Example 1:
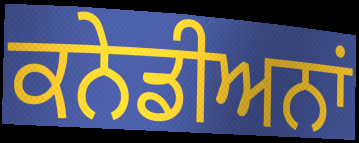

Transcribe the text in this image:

ਕਨੇਡੀਅਨਾਂ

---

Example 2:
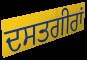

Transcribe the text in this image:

ਦਸਤਗੀਰਾਂ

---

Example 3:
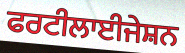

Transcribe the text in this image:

ਫਰਟੀਲਾਈਜੇਸ਼ਨ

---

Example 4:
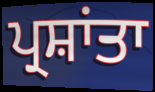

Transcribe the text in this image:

ਪ੍ਰਸ਼ਾਂਤਾ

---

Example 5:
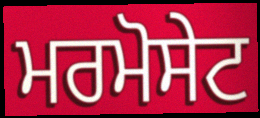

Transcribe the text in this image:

ਮਰਮੋਸੇਟ